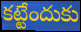
కట్టేందుకు